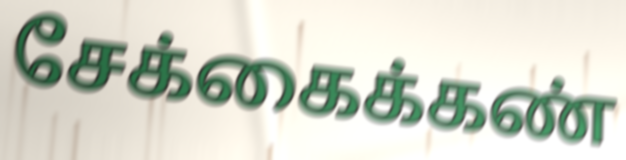
சேக்கைக்கண்